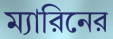
ম্যারিনের